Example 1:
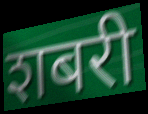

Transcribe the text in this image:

शबरी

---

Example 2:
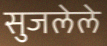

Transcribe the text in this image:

सुजलेले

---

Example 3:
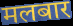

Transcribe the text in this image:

मलबार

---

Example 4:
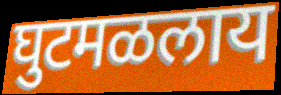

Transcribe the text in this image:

घुटमळलाय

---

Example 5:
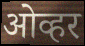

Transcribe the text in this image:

ओव्हर